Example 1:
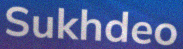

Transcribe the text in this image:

Sukhdeo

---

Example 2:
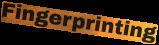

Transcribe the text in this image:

Fingerprinting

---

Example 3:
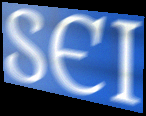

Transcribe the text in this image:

SEI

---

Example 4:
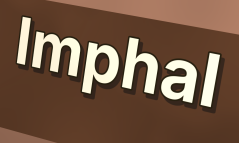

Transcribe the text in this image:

Imphal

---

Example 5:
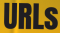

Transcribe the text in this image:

URLs